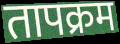
तापक्रम